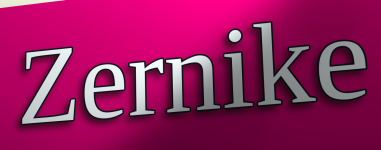
Zernike